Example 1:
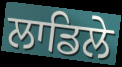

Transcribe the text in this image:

ਲਾਡਿਲੇ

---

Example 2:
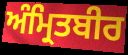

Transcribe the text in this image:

ਅੰਮ੍ਰਿਤਬੀਰ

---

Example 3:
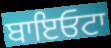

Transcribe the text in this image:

ਬਾਇਓਟਾ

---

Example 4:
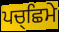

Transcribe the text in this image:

ਪਚ੍ਛਿਮੇ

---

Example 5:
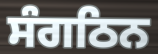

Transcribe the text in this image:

ਸੰਗਠਿਨ